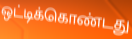
ஒட்டிக்கொண்டது